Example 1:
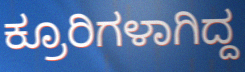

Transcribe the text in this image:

ಕ್ರೂರಿಗಳಾಗಿದ್ದ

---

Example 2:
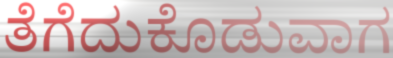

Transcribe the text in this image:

ತೆಗೆದುಕೊಡುವಾಗ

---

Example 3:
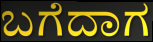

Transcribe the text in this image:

ಬಗೆದಾಗ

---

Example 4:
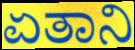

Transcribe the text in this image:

ಏತಾನಿ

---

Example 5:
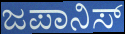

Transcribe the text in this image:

ಜಪಾನಿಸ್